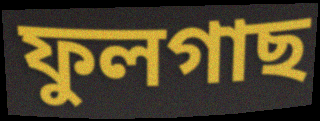
ফুলগাছ